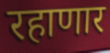
रहाणार